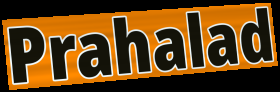
Prahalad